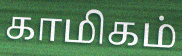
காமிகம்